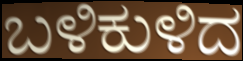
ಬಳಿಕುಳಿದ